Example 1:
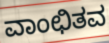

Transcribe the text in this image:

ವಾಂಛಿತವ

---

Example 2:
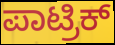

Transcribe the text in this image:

ಪಾಟ್ರಿಕ್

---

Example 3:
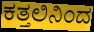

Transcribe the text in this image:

ಕತ್ತಲಿನಿಂದ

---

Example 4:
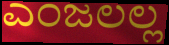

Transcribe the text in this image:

ಎಂಜಲಲ್ಲ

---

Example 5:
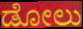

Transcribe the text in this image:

ಡೋಲು